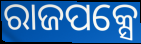
ରାଜପକ୍ସେ